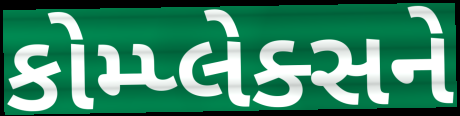
કોમ્પ્લેક્સને